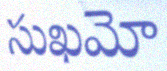
సుఖమో